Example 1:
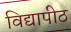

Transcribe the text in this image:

विद्यापीठ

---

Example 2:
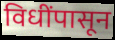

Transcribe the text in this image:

विधींपासून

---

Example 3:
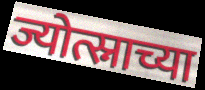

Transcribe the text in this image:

ज्योत्स्नाच्या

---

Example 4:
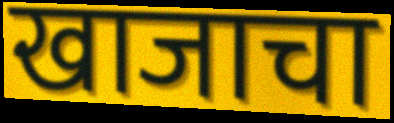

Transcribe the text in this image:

खाजाचा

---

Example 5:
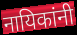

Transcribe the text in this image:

नायिकांनी